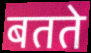
बतते